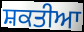
ਸ਼ਕਤੀਆ